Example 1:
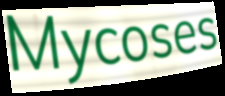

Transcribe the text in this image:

Mycoses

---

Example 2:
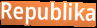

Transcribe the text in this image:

Republika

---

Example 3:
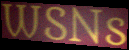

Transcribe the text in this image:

WSNs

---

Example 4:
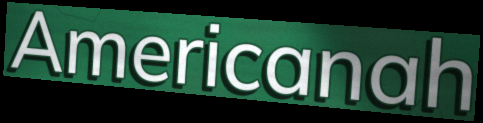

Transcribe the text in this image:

Americanah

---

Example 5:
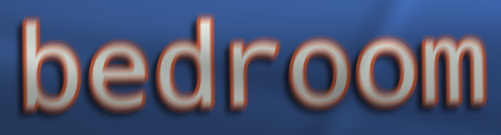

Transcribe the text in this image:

bedroom